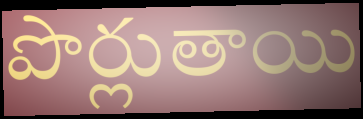
పొర్లుతాయి